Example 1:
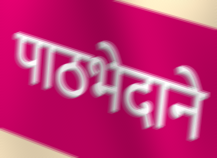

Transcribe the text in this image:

पाठभेदाने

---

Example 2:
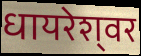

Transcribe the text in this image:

धायरेश्वर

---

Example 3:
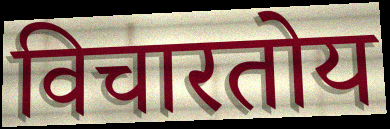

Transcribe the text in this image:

विचारतोय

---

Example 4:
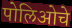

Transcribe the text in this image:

पोलिओचे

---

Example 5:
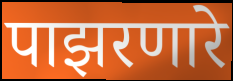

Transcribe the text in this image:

पाझरणारे